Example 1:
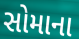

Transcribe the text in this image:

સોમાના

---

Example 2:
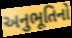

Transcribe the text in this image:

અનુભૂતિનો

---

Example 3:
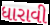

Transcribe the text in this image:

ધારાવી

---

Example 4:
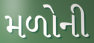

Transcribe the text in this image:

મળોની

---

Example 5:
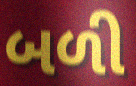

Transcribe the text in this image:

બળી